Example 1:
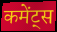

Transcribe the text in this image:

कमेंट्‌स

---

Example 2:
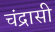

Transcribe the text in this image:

चंद्रासी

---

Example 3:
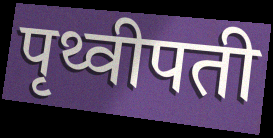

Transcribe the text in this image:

पृथ्वीपती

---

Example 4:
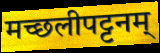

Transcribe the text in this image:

मच्छलीपट्टनम्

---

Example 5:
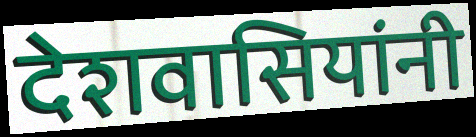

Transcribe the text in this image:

देशवासियांनी